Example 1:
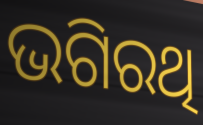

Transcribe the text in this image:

ଭଗିରଥି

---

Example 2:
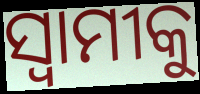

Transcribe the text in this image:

ସ୍ୱାମୀକୁ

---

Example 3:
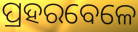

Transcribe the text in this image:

ପ୍ରହରବେଳେ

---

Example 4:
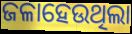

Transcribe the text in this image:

ଜଳାହେଉଥିଲା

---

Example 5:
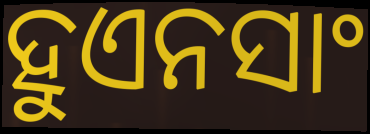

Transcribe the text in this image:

ହୁଏନସାଂ